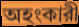
অহংকারী